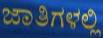
ಜಾತಿಗಳಲ್ಲಿ